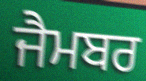
ਜੈਮਬਰ